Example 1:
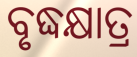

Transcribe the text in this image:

ବୃଦ୍ଧକ୍ଷାତ୍ର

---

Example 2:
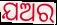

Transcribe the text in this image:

ଯଅର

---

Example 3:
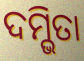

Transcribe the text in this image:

ଦମ୍ଭିତା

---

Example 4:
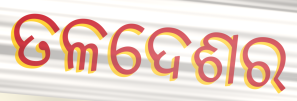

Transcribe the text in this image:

ତଳଦେଶର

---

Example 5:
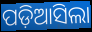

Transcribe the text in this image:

ପଡ଼ିଆସିଲା